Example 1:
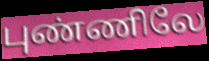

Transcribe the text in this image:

புண்ணிலே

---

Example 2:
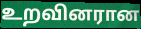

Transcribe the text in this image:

உறவினரான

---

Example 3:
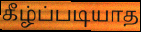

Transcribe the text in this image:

கீழ்ப்படியாத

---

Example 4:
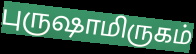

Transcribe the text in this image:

புருஷாமிருகம்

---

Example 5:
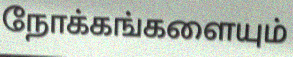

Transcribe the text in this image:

நோக்கங்களையும்